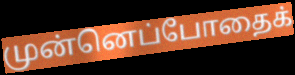
முன்னெப்போதைக்